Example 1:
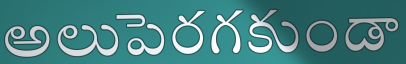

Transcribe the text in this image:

అలుపెరగకుండా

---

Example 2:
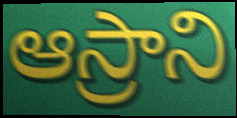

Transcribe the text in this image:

ఆస్రాని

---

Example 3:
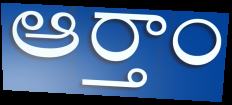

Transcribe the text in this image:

ఆర్తాం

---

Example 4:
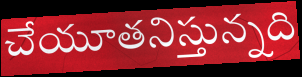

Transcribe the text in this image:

చేయూతనిస్తున్నది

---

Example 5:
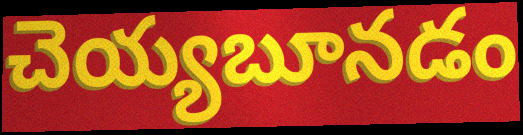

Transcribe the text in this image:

చెయ్యబూనడం